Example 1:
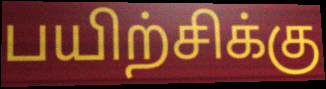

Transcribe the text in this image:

பயிற்சிக்கு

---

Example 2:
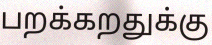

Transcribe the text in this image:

பறக்கறதுக்கு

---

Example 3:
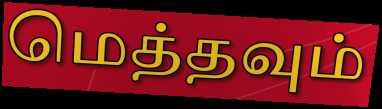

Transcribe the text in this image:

மெத்தவும்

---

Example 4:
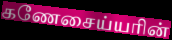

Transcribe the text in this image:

கணேசைய்யரின்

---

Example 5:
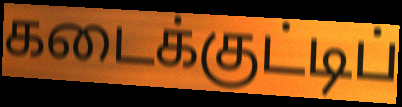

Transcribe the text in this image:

கடைக்குட்டிப்